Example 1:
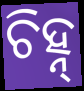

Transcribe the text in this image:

ଚିହ୍ନ୍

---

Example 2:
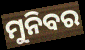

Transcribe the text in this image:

ମୁନିବର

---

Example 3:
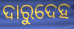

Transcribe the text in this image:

ଦାରୁଦେହ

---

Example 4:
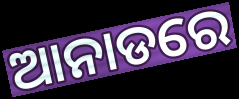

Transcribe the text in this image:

ଆନାଡରେ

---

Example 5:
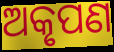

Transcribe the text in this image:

ଅକୃପଣ